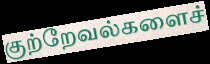
குற்றேவல்களைச்